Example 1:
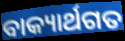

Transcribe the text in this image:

ବାକ୍ୟାର୍ଥଗତ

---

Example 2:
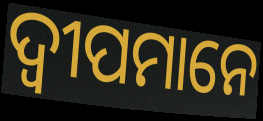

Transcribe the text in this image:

ଦ୍ୱୀପମାନେ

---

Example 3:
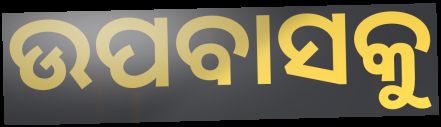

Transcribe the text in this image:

ଉପବାସକୁ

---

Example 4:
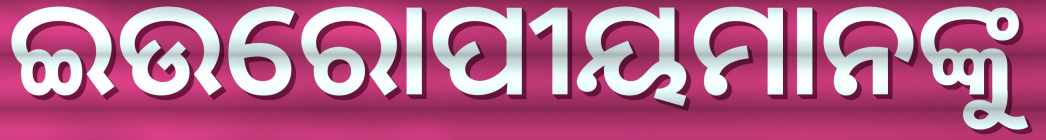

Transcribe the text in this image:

ଇଉରୋପୀୟମାନଙ୍କୁ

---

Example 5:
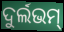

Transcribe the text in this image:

ଦୁର୍ଲଭମ୍